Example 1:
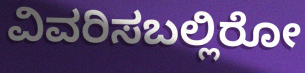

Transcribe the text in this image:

ವಿವರಿಸಬಲ್ಲಿರೋ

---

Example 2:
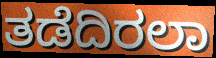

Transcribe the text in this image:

ತಡೆದಿರಲಾ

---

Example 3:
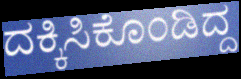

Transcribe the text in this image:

ದಕ್ಕಿಸಿಕೊಂಡಿದ್ದ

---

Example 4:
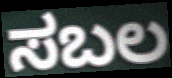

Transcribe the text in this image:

ಸಬಲ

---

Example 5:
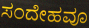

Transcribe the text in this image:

ಸಂದೇಹವೂ